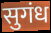
सुगंध